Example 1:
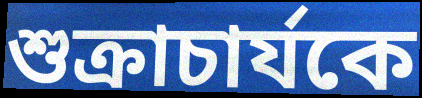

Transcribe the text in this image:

শুক্রাচার্যকে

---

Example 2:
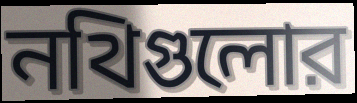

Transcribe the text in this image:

নথিগুলোর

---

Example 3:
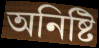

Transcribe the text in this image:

অনিষ্টি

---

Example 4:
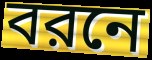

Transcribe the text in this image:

বরনে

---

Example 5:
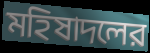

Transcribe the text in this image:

মহিষাদলের